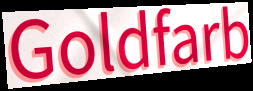
Goldfarb